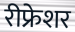
रीफ्रेशर